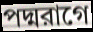
পদ্মরাগে